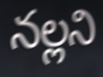
నల్లని